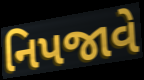
નિપજાવે